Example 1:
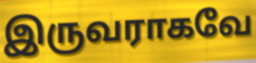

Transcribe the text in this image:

இருவராகவே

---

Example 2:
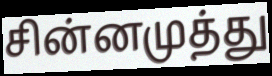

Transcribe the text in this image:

சின்னமுத்து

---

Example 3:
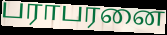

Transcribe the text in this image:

பராபரனை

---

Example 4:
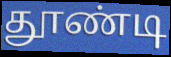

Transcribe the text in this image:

தூண்டி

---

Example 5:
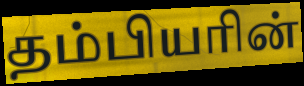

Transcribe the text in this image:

தம்பியரின்